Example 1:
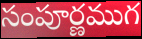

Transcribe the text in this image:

సంపూర్ణముగ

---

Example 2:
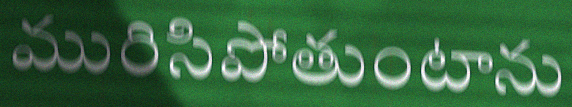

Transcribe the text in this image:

మురిసిపోతుంటాను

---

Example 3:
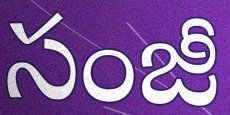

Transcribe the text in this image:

సంజీ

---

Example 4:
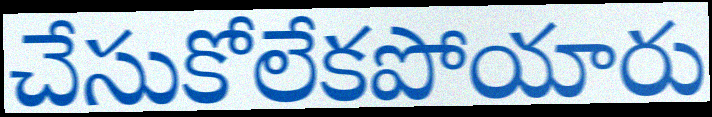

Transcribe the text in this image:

చేసుకోలేకపోయారు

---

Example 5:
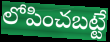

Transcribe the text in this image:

లోపించబట్టే